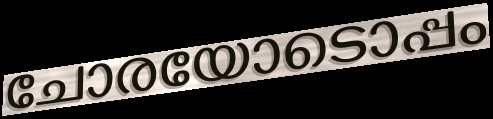
ചോരയോടൊപ്പം